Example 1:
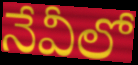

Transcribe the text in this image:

నేవీలో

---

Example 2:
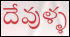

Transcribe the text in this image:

దేవుళ్ళ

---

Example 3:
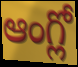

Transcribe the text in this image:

ఆంగ్లో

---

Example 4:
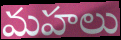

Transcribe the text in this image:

మహలు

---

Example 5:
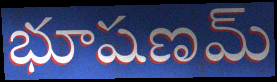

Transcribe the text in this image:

భూషణమ్